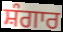
ਸ਼ੰਗਾਰ